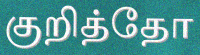
குறித்தோ